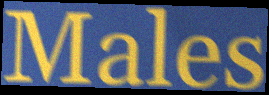
Males